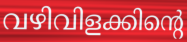
വഴിവിളക്കിന്റെ